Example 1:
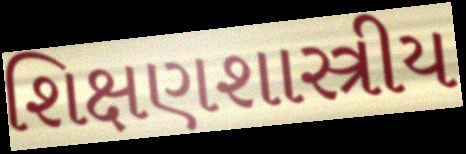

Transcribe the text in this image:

શિક્ષણશાસ્ત્રીય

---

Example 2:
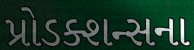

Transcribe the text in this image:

પ્રોડક્શન્સના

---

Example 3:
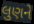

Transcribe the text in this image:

લુણને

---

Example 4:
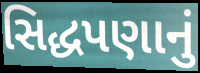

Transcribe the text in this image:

સિદ્ધપણાનું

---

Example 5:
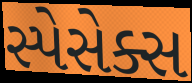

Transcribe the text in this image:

સ્પેસેક્સ